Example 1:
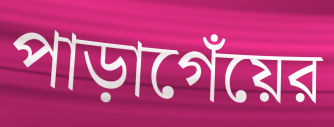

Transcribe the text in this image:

পাড়াগেঁয়ের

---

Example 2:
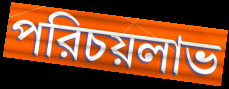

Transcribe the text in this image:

পরিচয়লাভ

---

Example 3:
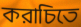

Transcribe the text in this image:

করাচিতে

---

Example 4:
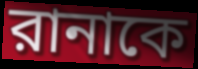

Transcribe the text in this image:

রানাকে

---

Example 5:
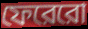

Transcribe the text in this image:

ফেরেরো